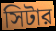
সিটার